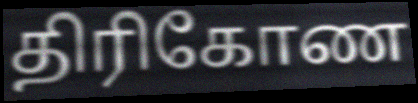
திரிகோண